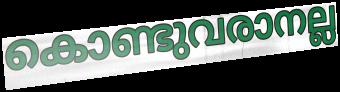
കൊണ്ടുവരാനല്ല